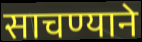
साचण्याने